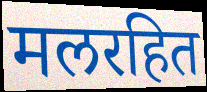
मलरहित